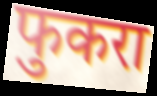
फुकरा